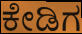
ಕೇಡಿಗ